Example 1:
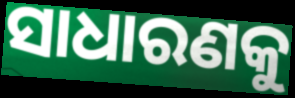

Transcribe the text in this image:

ସାଧାରଣକୁ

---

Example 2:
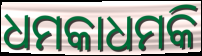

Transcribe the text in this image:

ଧମକାଧମକି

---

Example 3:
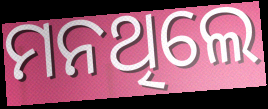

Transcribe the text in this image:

ମନଥିଲେ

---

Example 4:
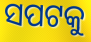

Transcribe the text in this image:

ସପଟକୁ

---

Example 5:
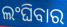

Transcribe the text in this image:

ଲଂଘିବାର